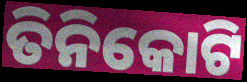
ତିନିକୋଟି